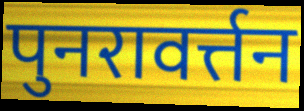
पुनरावर्त्तन